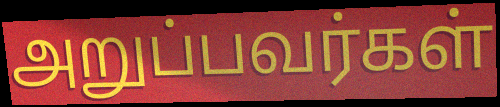
அறுப்பவர்கள்